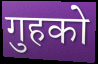
गुहको